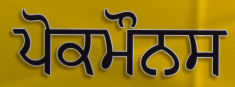
ਪੋਕਮੌਨਸ